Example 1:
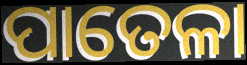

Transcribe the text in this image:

ପାତେଳା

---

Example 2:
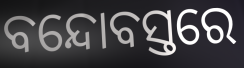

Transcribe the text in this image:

ବନ୍ଦୋବସ୍ତରେ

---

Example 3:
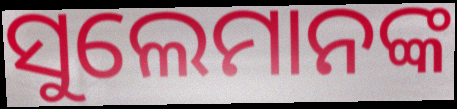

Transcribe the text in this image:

ସୁଲେମାନଙ୍କ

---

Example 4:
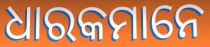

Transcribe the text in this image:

ଧାରକମାନେ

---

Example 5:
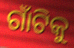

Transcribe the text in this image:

ଗାଁଟିକୁ